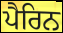
ਪੈਰਿਨ